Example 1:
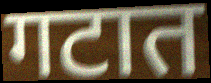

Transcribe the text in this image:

गटात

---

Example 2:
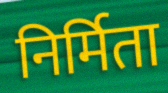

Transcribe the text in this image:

निर्मिता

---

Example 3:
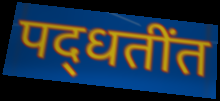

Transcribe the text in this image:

पद्धतींत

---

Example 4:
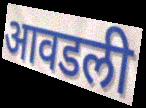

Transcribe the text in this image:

आवडली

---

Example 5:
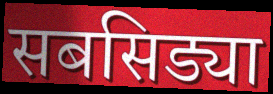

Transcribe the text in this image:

सबसिड्या